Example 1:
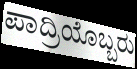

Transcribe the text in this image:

ಪಾದ್ರಿಯೊಬ್ಬರು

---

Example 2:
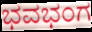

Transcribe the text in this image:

ಭವಭಂಗ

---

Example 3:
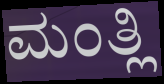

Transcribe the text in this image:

ಮಂತ್ಲಿ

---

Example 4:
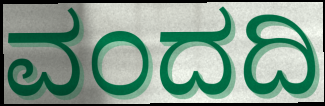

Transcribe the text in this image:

ವಂದದಿ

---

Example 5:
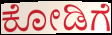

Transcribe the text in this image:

ಕೋಡಿಗೆ